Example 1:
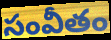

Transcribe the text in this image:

సంవీతం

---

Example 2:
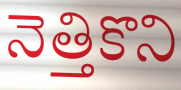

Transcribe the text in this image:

నెత్తికొని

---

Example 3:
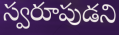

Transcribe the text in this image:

స్వరూపుడని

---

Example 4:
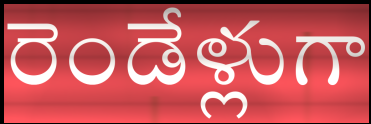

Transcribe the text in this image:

రెండేళ్లుగా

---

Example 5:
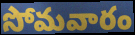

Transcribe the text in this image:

సోమవారం